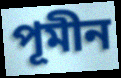
পূমীন